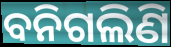
ବନିଗଲିଣି